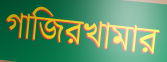
গাজিরখামার